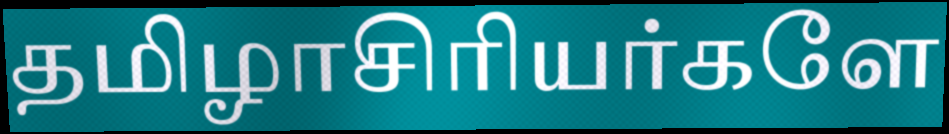
தமிழாசிரியர்களே